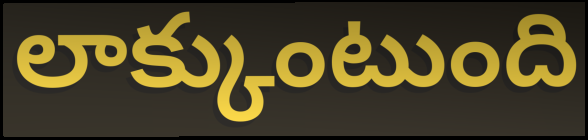
లాక్కుంటుంది